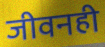
जीवनही